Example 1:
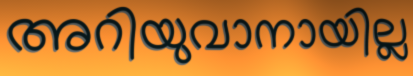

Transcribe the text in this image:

അറിയുവാനായില്ല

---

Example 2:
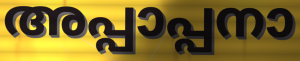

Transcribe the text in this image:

അപ്പാപ്പനാ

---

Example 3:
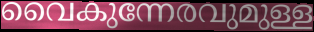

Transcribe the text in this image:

വൈകുന്നേരവുമുള്ള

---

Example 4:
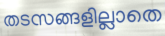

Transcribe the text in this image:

തടസങ്ങളില്ലാതെ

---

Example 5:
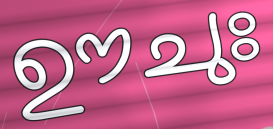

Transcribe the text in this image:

ഊചുഃ